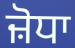
ਜ਼ੋਧਾ